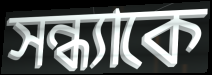
সন্ধ্যাকে